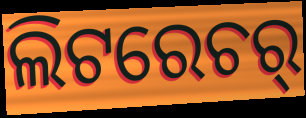
ଲିଟରେଚର୍